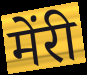
मेंरी